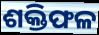
ଶକ୍ତିଫଳ